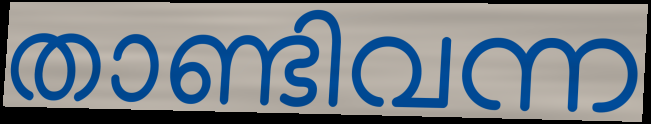
താണ്ടിവന്ന